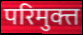
परिमुक्त